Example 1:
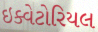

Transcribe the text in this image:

ઇક્વેટોરિયલ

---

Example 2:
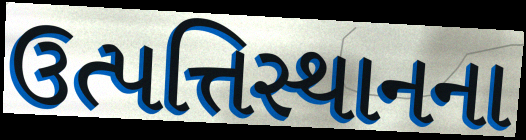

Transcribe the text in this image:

ઉત્પત્તિસ્થાનના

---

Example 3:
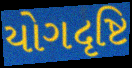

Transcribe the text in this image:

યોગદૃષ્ટિ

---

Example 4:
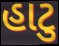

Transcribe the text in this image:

હાટુ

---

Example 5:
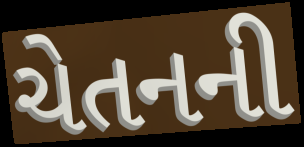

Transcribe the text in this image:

ચેતનની